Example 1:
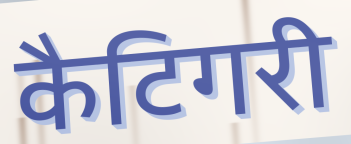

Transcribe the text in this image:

कैटिगरी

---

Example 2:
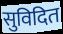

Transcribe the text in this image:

सुविदित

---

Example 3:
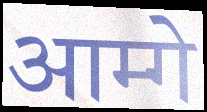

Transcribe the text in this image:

आम्गे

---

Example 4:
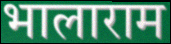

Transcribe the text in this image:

भालाराम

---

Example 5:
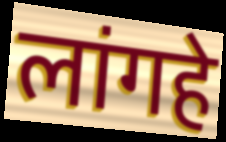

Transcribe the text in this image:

लांगहे